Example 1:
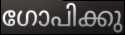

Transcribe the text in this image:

ഗോപിക്കു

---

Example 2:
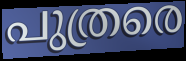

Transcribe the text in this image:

പുത്രരെ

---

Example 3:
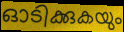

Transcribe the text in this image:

ഓടിക്കുകയും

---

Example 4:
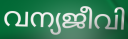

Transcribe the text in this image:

വന്യജീവി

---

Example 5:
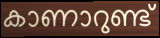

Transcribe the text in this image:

കാണാറുണ്ട്